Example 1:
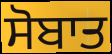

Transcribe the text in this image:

ਸੋਬਾਤ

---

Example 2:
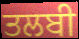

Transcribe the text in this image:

ਤਲਬੀ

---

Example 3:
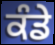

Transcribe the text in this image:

ਕੰਡੇ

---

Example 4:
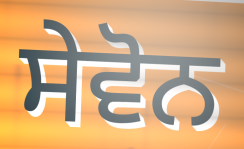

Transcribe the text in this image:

ਸੇਵੋਨ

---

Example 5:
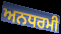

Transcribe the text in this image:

ਅਨਧਰਮੀ